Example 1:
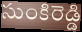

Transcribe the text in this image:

సుంకిరెడ్డి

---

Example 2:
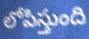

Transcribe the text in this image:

లోపిస్తుంది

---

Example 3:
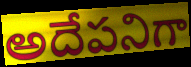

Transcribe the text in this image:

అదేపనిగా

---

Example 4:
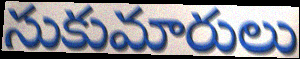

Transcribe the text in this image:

సుకుమారులు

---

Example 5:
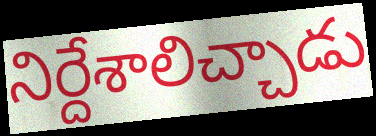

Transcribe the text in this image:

నిర్దేశాలిచ్చాడు